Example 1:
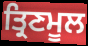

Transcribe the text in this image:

ਤ੍ਰਿਣਮੂਲ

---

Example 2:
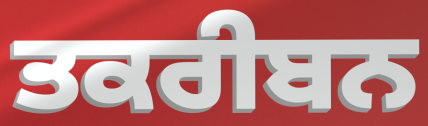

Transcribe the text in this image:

ਤਕਰੀਬਨ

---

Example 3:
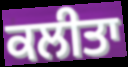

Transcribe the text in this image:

ਕਲੀਤਾ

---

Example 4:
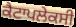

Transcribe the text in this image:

ਕੈਟਾਪਲੇਕਸੀ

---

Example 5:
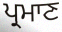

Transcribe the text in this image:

ਪ੍ਰਮਾਣ